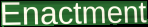
Enactment